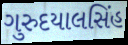
ગુરુદયાલસિંહ